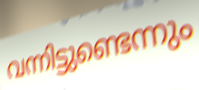
വന്നിട്ടുണ്ടെന്നും